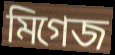
মিগেজ